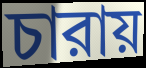
চারায়